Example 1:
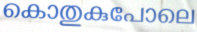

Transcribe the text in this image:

കൊതുകുപോലെ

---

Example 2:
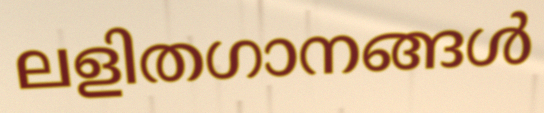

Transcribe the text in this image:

ലളിതഗാനങ്ങൾ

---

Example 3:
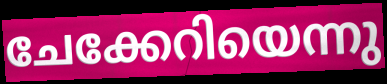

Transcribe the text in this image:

ചേക്കേറിയെന്നു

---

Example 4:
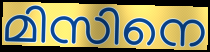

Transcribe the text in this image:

മിസിനെ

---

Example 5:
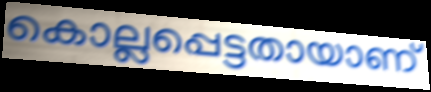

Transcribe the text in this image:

കൊല്ലപ്പെട്ടതായാണ്